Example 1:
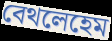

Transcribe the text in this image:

বেথলেহেম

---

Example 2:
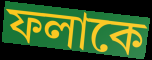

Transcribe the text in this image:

ফলাকে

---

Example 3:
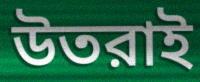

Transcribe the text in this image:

উতরাই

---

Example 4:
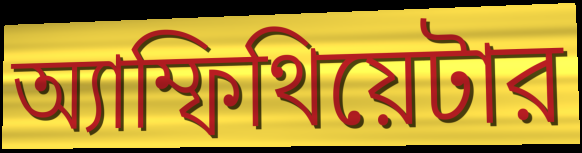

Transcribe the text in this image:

অ্যাম্ফিথিয়েটার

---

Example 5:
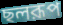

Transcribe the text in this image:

ছলরূপ